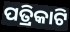
ପତ୍ରିକାଟି